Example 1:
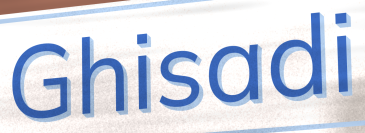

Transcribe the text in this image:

Ghisadi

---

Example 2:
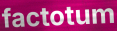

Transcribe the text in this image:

factotum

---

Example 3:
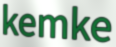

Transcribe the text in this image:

kemke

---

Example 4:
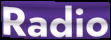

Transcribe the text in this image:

Radio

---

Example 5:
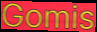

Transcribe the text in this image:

Gomis